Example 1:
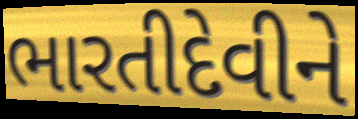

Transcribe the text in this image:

ભારતીદેવીને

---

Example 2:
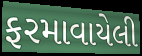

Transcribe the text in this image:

ફરમાવાયેલી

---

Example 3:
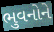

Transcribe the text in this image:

ભુવનોને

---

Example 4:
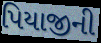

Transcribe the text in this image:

પિયાજીની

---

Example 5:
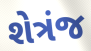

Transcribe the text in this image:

શેત્રંજ